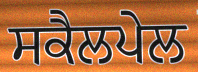
ਸਕੈਲਪੇਲ